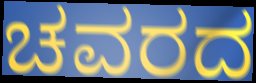
ಚವರದ